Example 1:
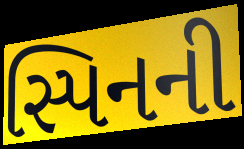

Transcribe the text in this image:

સ્પિનની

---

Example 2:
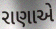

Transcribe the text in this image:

રાણાએ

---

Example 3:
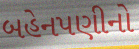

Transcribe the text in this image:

બહેનપણીનો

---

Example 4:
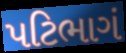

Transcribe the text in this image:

પટિભાગં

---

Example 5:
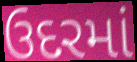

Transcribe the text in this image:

ઉદરમાં